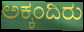
ಅಕ್ಕಂದಿರು